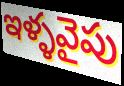
ఇళ్ళవైపు